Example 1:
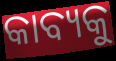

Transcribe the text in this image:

କାବ୍ୟକୁ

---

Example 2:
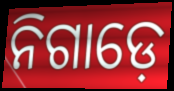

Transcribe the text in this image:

ନିଗାଡ଼େ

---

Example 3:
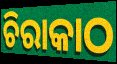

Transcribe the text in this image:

ଚିରାକାଠ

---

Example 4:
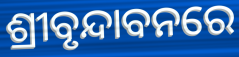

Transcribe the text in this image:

ଶ୍ରୀବୃନ୍ଦାବନରେ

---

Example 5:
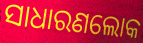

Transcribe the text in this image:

ସାଧାରଣଲୋକ